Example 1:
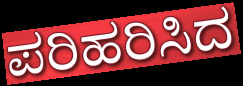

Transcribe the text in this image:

ಪರಿಹರಿಸಿದ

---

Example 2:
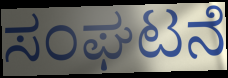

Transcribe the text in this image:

ಸಂಘಟನೆ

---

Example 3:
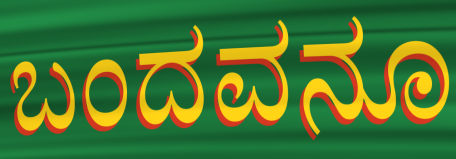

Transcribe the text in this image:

ಬಂದವನೂ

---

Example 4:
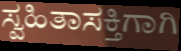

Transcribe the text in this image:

ಸ್ವಹಿತಾಸಕ್ತಿಗಾಗಿ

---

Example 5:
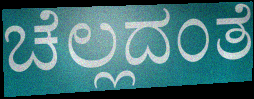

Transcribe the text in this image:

ಚೆಲ್ಲದಂತೆ